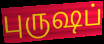
புருஷப்